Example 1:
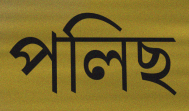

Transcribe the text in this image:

পলিছ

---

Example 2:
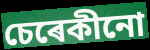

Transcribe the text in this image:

চেৰেকীনো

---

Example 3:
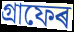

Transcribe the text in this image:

গ্ৰাফেৰ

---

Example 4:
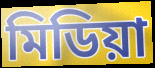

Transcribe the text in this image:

মিডিয়া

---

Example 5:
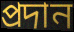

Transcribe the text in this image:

প্ৰদান